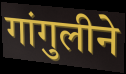
गांगुलीने